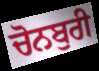
ਚੋਨਬੁਰੀ